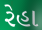
રેહા